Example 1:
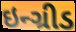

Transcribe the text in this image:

ઇન્ગ્રીડ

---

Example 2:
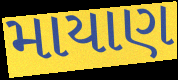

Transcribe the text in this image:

માયાણ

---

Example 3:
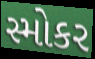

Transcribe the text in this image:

સ્મોકર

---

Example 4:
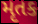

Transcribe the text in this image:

મૃતક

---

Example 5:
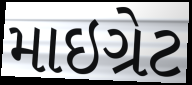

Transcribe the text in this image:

માઇગ્રેટ